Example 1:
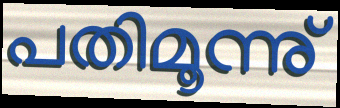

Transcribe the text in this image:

പതിമൂന്നു്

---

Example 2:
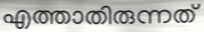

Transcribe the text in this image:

എത്താതിരുന്നത്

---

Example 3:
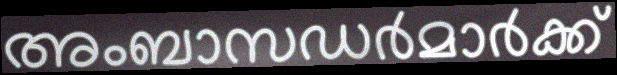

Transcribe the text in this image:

അംബാസഡർമാർക്ക്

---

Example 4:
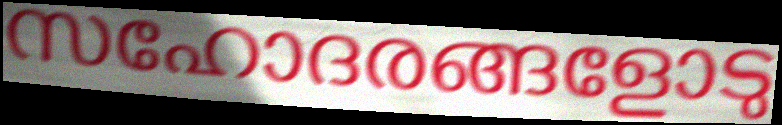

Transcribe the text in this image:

സഹോദരങ്ങളോടു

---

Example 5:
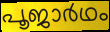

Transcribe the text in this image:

പൂജാർഥം